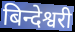
बिन्देश्वरी